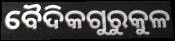
ବୈଦିକଗୁରୁକୁଳ